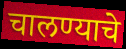
चालण्याचे